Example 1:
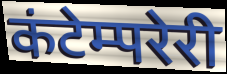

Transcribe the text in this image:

कंटेम्परेरी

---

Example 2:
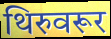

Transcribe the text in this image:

थिरुवरूर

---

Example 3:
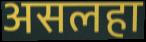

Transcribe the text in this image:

असलहा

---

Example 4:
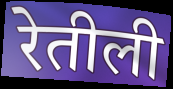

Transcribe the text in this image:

रेतीली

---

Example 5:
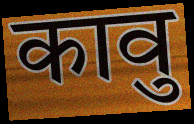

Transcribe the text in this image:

कावु